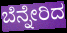
ಬೆನ್ನೇರಿದ